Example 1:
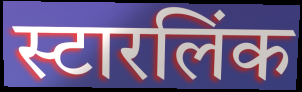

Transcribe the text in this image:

स्‍टारलिंक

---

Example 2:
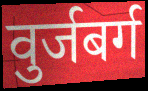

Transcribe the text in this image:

वुर्जबर्ग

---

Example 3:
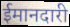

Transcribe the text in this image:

ईमानदारी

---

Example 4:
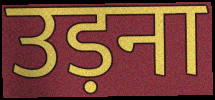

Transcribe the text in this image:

उड़ना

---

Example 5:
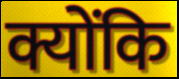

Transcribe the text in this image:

क्योंकि